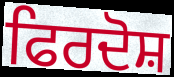
ਫਿਰਦੋਸ਼